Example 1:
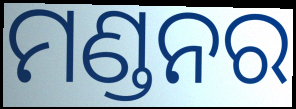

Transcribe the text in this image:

ମଣ୍ଡନର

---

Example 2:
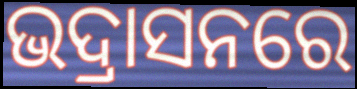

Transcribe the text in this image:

ଭଦ୍ରାସନରେ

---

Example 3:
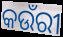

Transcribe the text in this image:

କଉଁରୀ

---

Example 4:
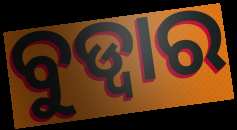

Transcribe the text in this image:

ବୁଡ୍ୱାର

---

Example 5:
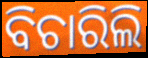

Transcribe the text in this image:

ବିଚାରିଲି